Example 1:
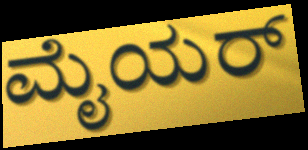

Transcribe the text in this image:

ಮೈಯರ್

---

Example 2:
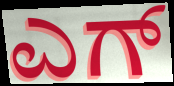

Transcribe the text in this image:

ಎಗ್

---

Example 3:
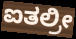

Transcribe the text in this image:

ಐತಲ್ರೀ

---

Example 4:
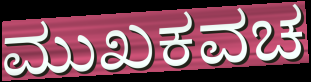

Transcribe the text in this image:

ಮುಖಕವಚ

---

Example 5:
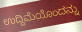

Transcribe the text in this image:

ಉದ್ದಿಮೆಯೊಂದನ್ನು